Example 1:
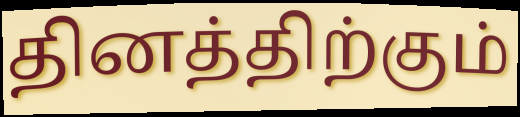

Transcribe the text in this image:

தினத்திற்கும்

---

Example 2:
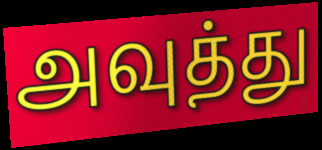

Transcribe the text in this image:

அவுத்து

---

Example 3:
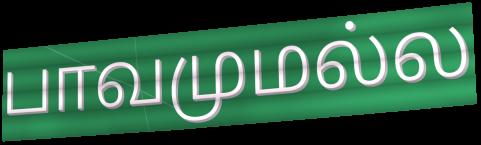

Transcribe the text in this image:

பாவமுமல்ல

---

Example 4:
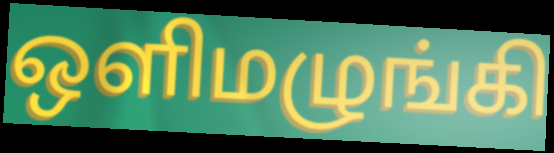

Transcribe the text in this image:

ஒளிமழுங்கி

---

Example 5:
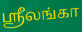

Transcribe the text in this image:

ஶ்ரீலங்கா